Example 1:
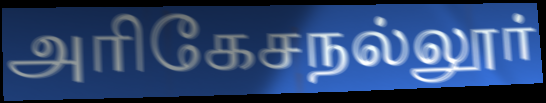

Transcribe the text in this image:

அரிகேசநல்லூர்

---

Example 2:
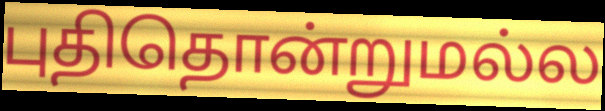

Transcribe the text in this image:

புதிதொன்றுமல்ல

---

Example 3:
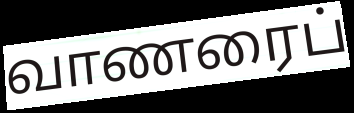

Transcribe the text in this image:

வாணரைப்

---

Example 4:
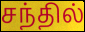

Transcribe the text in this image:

சந்தில்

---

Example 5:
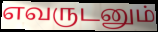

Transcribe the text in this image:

எவருடனும்